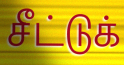
சீட்டுக்